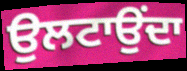
ਉਲਟਾਉਂਦਾ